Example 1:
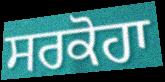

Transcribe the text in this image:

ਸਰਕੋਹਾ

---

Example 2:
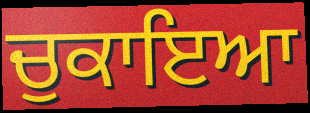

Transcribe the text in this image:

ਚੁਕਾਇਆ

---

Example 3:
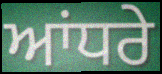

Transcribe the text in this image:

ਆਂਧਰੇ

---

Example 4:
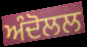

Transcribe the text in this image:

ਅੰਦੋਲਲ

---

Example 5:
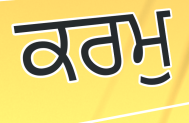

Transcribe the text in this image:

ਕਰਮੁ